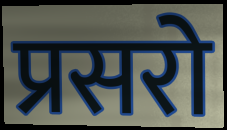
प्रसरो